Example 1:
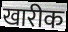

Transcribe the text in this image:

खारीक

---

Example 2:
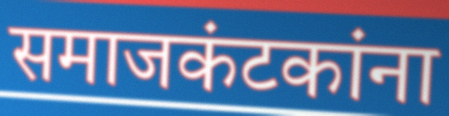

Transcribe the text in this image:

समाजकंटकांना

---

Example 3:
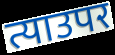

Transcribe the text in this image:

त्याउपर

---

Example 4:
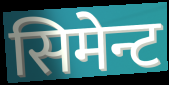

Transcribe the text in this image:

सिमेन्ट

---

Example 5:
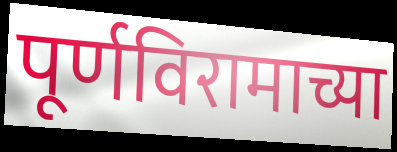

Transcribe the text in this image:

पूर्णविरामाच्या